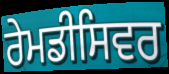
ਰੇਮਡੀਸਿਵਰ